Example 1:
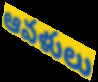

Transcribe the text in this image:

ఆవళులు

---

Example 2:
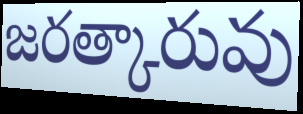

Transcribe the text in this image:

జరత్కారువు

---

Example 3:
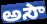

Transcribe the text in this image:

అసౌ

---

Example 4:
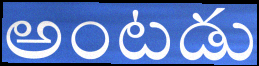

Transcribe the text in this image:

అంటడు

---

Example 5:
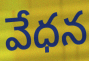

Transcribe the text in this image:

వేధన